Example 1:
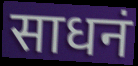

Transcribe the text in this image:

साधनं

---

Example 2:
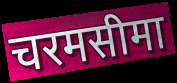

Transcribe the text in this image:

चरमसीमा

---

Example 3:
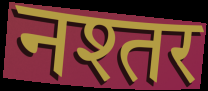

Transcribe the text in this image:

नश्तर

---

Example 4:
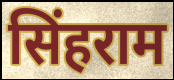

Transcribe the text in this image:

सिंहराम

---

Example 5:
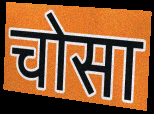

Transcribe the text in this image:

चोसा